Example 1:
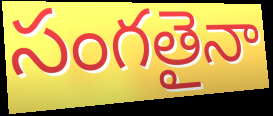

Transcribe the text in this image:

సంగతైనా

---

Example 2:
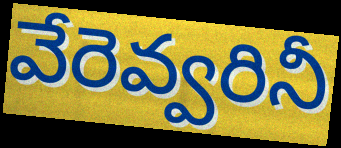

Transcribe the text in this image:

వేరెవ్వరినీ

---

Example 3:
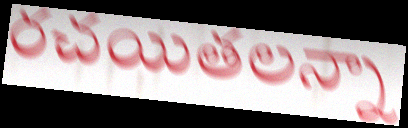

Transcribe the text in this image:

రచయితలన్నా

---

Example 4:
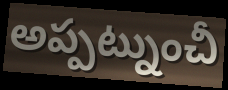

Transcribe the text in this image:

అప్పట్నుంచీ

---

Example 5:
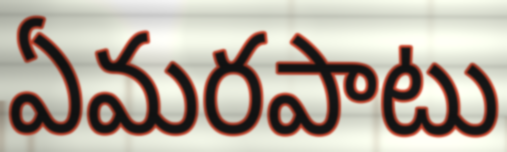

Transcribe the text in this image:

ఏమరపాటు